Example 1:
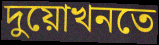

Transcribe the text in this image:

দুয়োখনতে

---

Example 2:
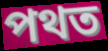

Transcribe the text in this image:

পথত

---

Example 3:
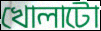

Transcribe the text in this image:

খোলাটো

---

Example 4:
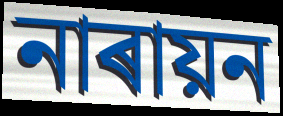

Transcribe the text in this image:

নাৰায়ন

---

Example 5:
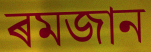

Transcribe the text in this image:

ৰমজান